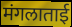
मंगलाताई